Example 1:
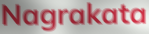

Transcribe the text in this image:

Nagrakata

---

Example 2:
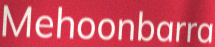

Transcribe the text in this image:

Mehoonbarra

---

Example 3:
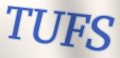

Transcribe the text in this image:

TUFS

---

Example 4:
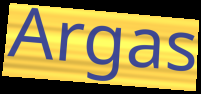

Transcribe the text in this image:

Argas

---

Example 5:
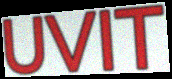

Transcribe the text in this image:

UVIT